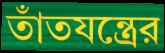
তাঁতযন্ত্রের